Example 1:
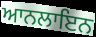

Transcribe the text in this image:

ਆਨਲਾਇਨ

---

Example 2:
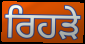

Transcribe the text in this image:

ਰਿਹੜੇ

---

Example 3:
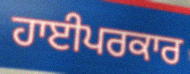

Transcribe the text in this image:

ਹਾਈਪਰਕਾਰ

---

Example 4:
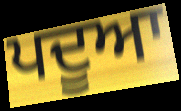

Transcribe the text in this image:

ਪਦੂਆ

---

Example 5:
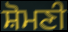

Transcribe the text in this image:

ਸ਼ੋਮਣੀ